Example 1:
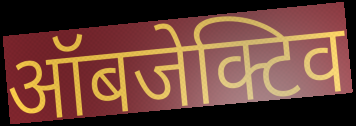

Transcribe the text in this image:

ऑबजेक्टिव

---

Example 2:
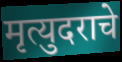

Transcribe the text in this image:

मृत्युदराचे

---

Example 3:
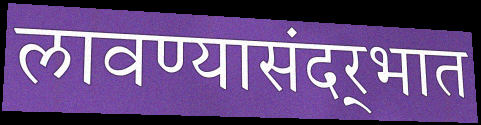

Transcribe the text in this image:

लावण्यासंदर्भात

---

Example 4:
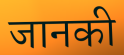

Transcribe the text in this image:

जानकी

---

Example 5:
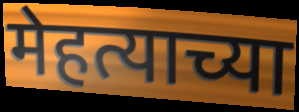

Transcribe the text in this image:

मेहत्याच्या